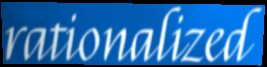
rationalized